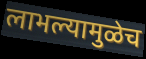
लाभल्यामुळेच